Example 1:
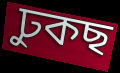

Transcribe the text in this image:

ঢুকছ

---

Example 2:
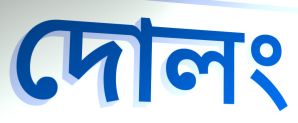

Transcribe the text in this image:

দোলং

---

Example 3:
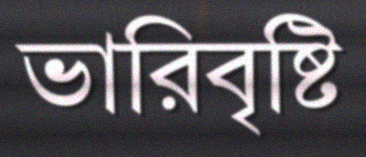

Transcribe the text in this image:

ভারিবৃষ্টি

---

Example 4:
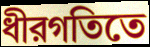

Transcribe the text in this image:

ধীরগতিতে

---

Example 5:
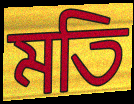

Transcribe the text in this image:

মতি